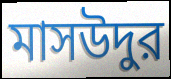
মাসউদুর